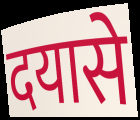
दयासे